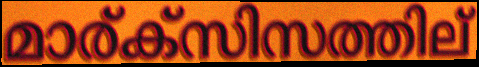
മാര്ക്സിസത്തില്